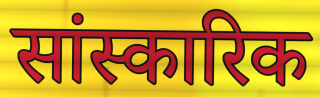
सांस्कारिक